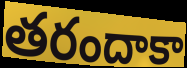
తరందాకా